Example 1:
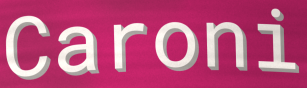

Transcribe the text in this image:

Caroni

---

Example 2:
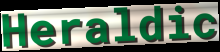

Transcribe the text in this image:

Heraldic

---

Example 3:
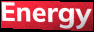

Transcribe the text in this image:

Energy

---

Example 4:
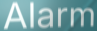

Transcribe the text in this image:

Alarm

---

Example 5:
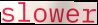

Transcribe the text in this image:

slower